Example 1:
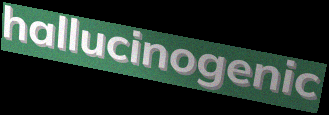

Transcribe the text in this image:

hallucinogenic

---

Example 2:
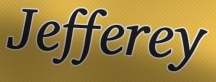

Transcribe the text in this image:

Jefferey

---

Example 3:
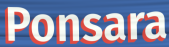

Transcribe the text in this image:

Ponsara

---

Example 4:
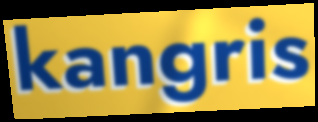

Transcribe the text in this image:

kangris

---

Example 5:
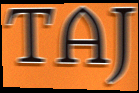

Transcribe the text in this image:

TAJ